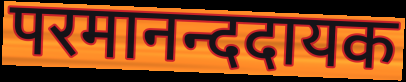
परमानन्ददायक